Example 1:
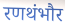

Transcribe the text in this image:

रणथंभौर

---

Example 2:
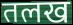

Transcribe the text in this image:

तलख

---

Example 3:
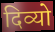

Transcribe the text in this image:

दिव्यो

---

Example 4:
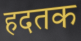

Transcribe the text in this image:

हदतक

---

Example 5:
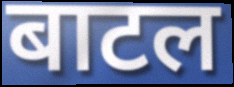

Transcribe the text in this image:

बाटल